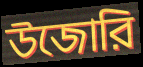
উজোরি